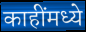
काहींमध्ये